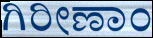
ಗಿರೀಣಾಂ